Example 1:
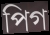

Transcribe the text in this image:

পিগ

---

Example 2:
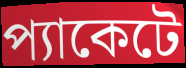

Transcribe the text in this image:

প্যাকেটে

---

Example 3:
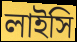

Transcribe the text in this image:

লাইসি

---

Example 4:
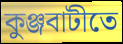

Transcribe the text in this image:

কুঞ্জবাটীতে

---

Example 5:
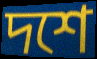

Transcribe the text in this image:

দশে